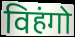
विहंगो